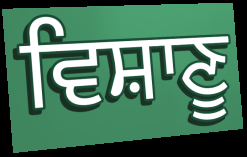
ਵਿਸ਼ਾਣੂ